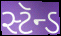
સ્ટૅન્ડ